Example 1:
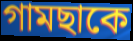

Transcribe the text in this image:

গামছাকে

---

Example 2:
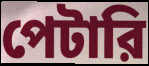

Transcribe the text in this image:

পেটারি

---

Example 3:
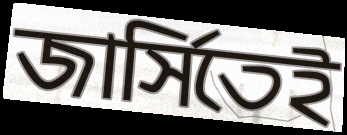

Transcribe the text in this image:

জার্সিতেই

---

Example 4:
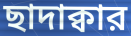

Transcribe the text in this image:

ছাদাক্বার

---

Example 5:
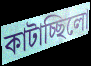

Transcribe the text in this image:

কাটাচ্ছিলো